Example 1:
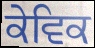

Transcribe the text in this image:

ਕੇਵਿਕ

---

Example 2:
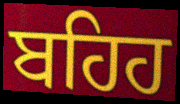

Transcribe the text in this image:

ਬਹਿਹ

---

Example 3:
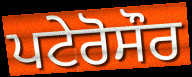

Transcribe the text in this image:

ਪਟੇਰੋਸੌਰ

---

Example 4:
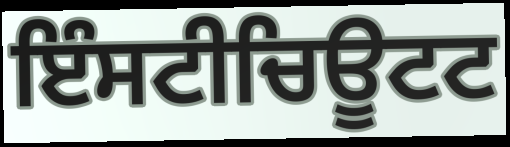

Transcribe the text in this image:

ਇੰਸਟੀਚਿਊਟਟ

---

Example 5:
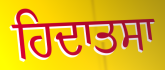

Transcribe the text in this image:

ਹਿਦਾਤਸਾ